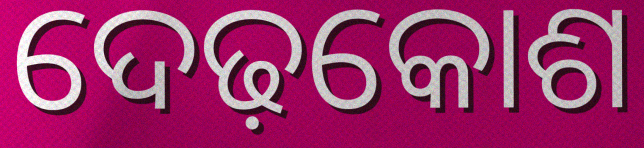
ଦେଢ଼କୋଶ